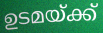
ഉടമയ്ക്ക്